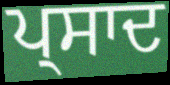
ਪ੍ਸਾਦ